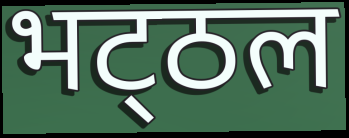
भट्‌ठल